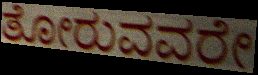
ತೋರುವವರೇ